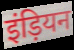
इंड़ियन